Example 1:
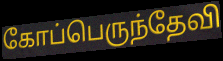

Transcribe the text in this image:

கோப்பெருந்தேவி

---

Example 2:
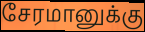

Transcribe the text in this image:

சேரமானுக்கு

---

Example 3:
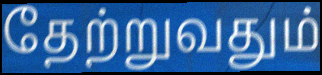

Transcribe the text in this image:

தேற்றுவதும்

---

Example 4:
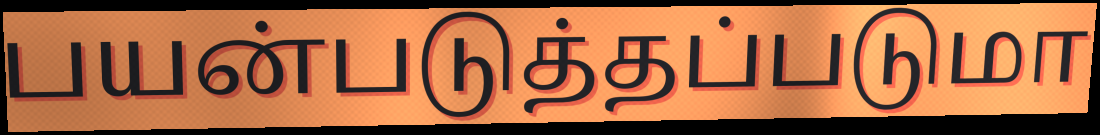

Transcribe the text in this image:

பயன்படுத்தப்படுமா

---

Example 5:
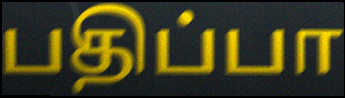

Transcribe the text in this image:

பதிப்பா